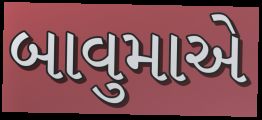
બાવુમાએ